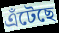
এঁটেছে